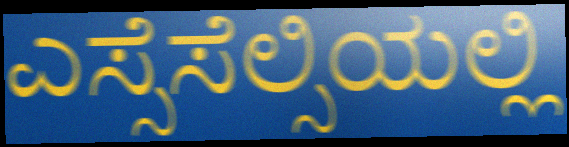
ಎಸ್ಸೆಸೆಲ್ಸಿಯಲ್ಲಿ